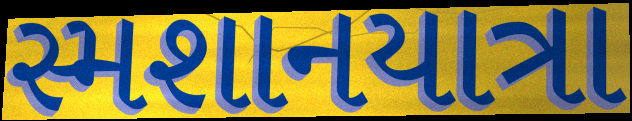
સ્મશાનયાત્રા